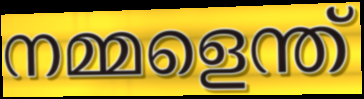
നമ്മളെന്ത്